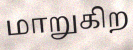
மாறுகிற